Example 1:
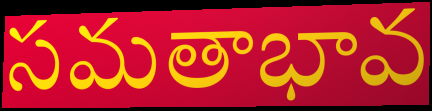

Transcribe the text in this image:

సమతాభావ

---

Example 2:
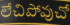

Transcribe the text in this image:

లేచిపోవుచో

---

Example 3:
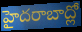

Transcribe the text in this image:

హైదరాబాద్లో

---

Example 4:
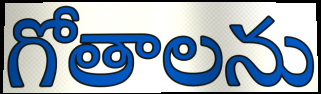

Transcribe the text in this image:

గోతాలను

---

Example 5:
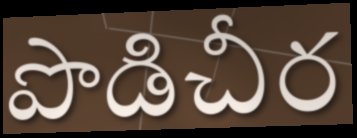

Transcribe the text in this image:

పొడిచీర